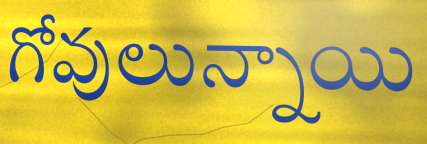
గోవులున్నాయి